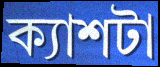
ক্যাশটা